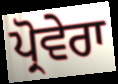
ਪ੍ਰੋਵੇਰਾ